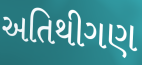
અતિથીગણ